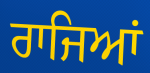
ਰਾਜਿਆਂ